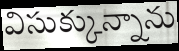
విసుక్కున్నాను